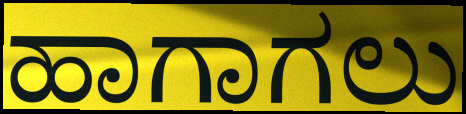
ಹಾಗಾಗಲು